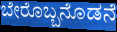
ಬೇರೊಬ್ಬನೊಡನೆ